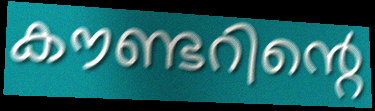
കൗണ്ടറിന്റെ